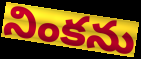
నింకను